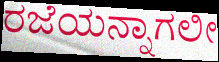
ರಜೆಯನ್ನಾಗಲೀ